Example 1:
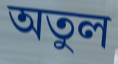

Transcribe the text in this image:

অতুল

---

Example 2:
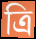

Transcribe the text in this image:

ত্রি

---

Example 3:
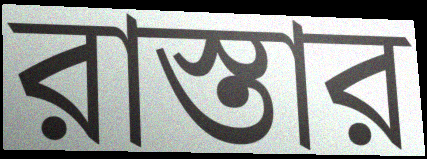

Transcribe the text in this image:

রাস্তার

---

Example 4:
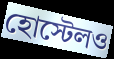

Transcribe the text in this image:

হোস্টেলও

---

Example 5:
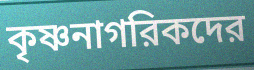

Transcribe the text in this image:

কৃষ্ণনাগরিকদের